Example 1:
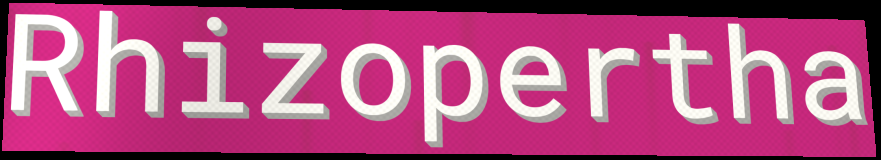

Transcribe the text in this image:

Rhizopertha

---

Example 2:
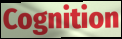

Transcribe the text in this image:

Cognition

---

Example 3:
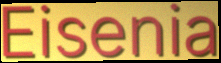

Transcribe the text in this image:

Eisenia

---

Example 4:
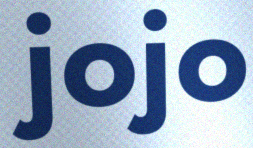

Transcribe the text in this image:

jojo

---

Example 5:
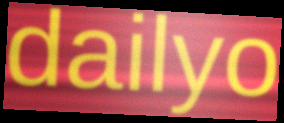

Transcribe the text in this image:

dailyo